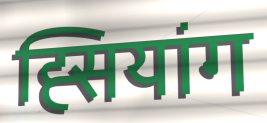
ह्सियांग